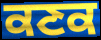
ਕਣਕ